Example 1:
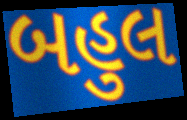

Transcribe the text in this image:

બહુલ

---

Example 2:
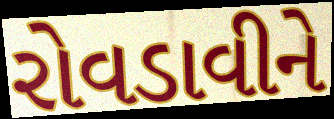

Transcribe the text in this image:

રોવડાવીને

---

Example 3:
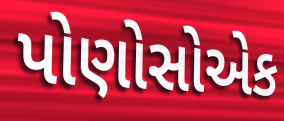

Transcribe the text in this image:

પોણોસોએક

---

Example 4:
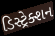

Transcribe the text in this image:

ડિસ્ટ્રેક્શન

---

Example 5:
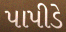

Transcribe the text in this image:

પાપીડે